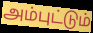
அம்புட்டும்